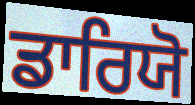
ਡਾਰਿਯੋ